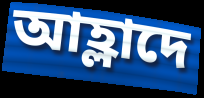
আহ্লাদে